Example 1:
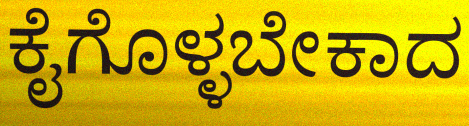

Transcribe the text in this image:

ಕೈಗೊಳ್ಳಬೇಕಾದ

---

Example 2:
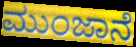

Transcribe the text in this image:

ಮುಂಜಾನೆ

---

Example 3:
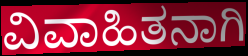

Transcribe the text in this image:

ವಿವಾಹಿತನಾಗಿ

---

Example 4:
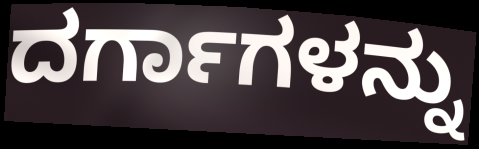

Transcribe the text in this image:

ದರ್ಗಾಗಳನ್ನು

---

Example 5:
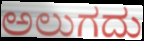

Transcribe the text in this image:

ಅಲುಗದು